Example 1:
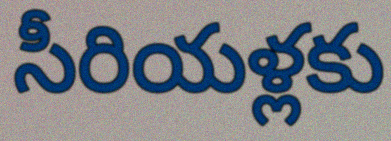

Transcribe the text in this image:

సీరియళ్లకు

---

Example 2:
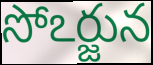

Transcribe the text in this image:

సోఽర్జున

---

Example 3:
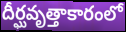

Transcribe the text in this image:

దీర్ఘవృత్తాకారంలో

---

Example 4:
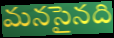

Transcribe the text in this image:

మనసైనది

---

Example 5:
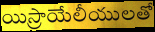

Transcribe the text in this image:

యిస్రాయేలీయులతో